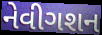
નેવીગશન